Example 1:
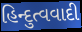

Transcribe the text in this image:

હિન્દુત્વવાદી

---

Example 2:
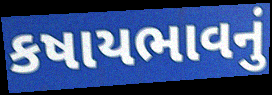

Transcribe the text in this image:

કષાયભાવનું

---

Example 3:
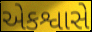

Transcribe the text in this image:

એકશ્વાસે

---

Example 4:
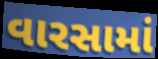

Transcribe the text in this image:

વારસામાં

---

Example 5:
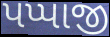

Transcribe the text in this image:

પપ્પાજી